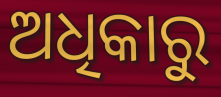
ଅଧିକାରୁ